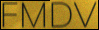
FMDV